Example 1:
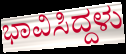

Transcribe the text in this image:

ಭಾವಿಸಿದ್ದಳು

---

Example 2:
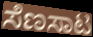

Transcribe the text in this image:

ಸೆಣಸಾಟ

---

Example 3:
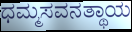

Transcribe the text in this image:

ಧಮ್ಮಸವನತ್ಥಾಯ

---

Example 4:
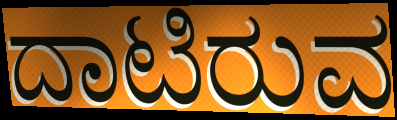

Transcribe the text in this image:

ದಾಟಿರುವ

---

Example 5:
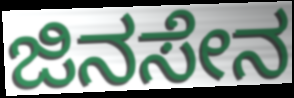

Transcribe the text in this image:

ಜಿನಸೇನ